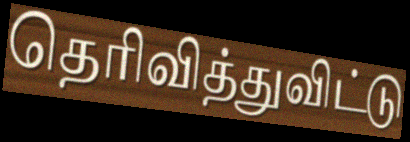
தெரிவித்துவிட்டு